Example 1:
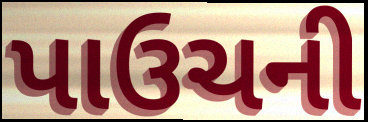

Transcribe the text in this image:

પાઉચની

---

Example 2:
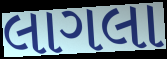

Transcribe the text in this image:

લાગલા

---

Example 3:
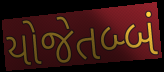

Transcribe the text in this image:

યોજેતબ્બં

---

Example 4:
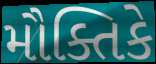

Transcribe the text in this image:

મૌક્તિકે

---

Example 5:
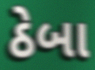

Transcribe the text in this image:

ઠેબા